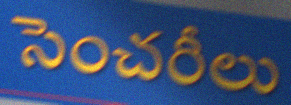
సెంచరీలు